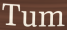
Tum